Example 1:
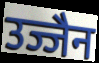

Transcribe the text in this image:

उज्जैन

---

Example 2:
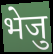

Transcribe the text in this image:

भेजु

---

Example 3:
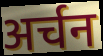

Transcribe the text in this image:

अर्चन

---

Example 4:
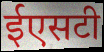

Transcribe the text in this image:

ईएसटी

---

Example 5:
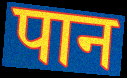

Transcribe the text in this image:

पान